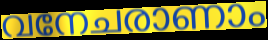
വനേചരാണാം